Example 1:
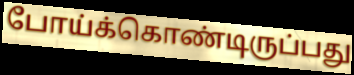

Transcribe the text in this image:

போய்க்கொண்டிருப்பது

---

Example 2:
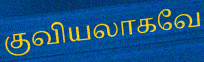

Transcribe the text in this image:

குவியலாகவே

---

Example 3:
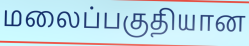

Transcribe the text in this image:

மலைப்பகுதியான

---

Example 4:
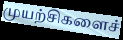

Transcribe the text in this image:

முயற்சிகளைச்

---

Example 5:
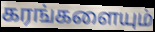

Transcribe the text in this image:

கரங்களையும்